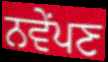
ਨਵੇਂਪਣ